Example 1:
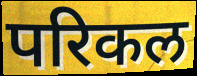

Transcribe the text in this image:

परिकल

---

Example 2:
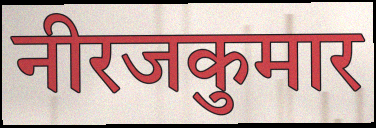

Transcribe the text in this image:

नीरजकुमार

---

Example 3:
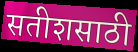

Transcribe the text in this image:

सतीशसाठी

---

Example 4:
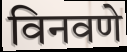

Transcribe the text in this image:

विनवणे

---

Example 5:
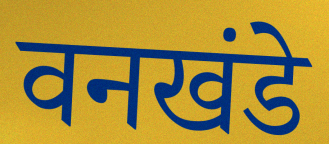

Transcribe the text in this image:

वनखंडे